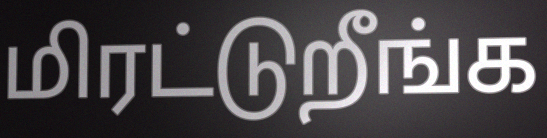
மிரட்டுறீங்க